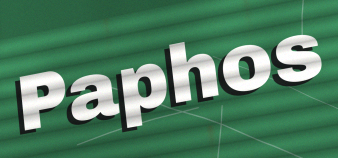
Paphos